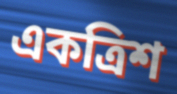
একত্রিশ